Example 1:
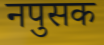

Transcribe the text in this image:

नपुसक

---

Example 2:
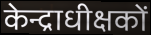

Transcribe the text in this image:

केन्द्राधीक्षकों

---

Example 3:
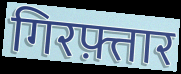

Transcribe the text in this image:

गिरफ़्तार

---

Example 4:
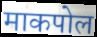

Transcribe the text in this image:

माकपोल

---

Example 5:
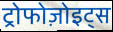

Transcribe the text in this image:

ट्रोफोज़ोइट्स